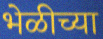
भेळीच्या